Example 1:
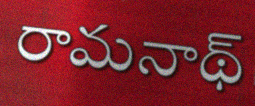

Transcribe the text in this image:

రామనాథ్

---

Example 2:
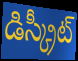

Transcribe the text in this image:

డిస్క్రీట్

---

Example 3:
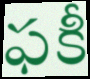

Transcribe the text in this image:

ఫకీ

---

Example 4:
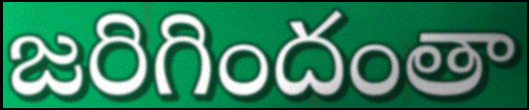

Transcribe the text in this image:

జరిగిందంతా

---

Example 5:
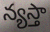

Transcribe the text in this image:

న్యస్తా